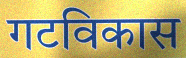
गटविकास